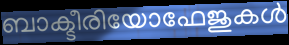
ബാക്ടീരിയോഫേജുകൾ